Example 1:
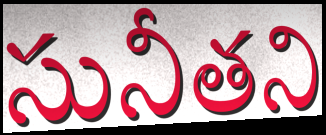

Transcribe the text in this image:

సునీతని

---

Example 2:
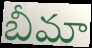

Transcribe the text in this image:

బీమా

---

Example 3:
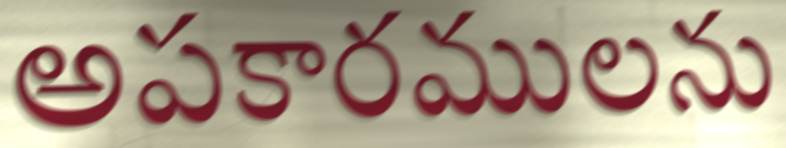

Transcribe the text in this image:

అపకారములను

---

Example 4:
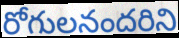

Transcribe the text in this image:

రోగులనందరిని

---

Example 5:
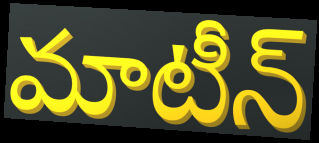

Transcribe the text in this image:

మాటీన్